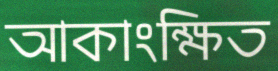
আকাংক্ষিত